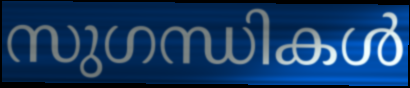
സുഗന്ധികൾ